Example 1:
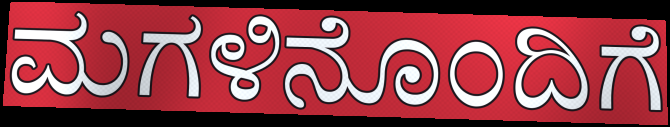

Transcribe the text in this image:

ಮಗಳಿನೊಂದಿಗೆ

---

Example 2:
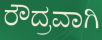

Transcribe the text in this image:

ರೌದ್ರವಾಗಿ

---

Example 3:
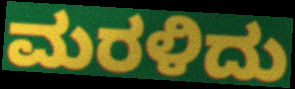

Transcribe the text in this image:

ಮರಳಿದು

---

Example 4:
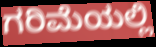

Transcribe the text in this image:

ಗರಿಮೆಯಲ್ಲಿ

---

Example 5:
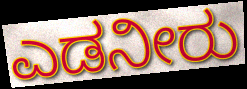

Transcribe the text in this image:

ಎಡನೀರು